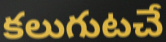
కలుగుటచే